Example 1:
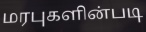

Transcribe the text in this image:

மரபுகளின்படி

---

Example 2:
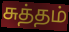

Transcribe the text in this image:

சுத்தம்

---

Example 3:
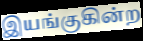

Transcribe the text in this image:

இயங்குகின்ற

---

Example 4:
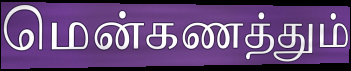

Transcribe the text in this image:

மென்கணத்தும்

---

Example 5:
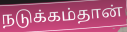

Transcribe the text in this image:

நடுக்கம்தான்